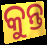
କୁନ୍ତ